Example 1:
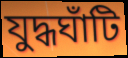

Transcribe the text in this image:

যুদ্ধঘাঁটি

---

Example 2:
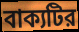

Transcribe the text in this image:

বাক্যটির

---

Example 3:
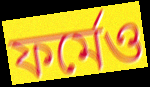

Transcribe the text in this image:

ফর্মেও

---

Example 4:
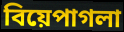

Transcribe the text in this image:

বিয়েপাগলা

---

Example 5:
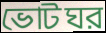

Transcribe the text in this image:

ভোটঘর